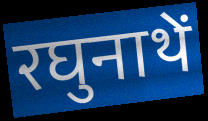
रघुनाथें